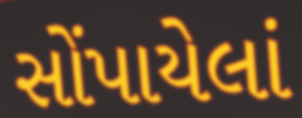
સોંપાયેલાં